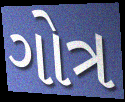
ગોત્ર